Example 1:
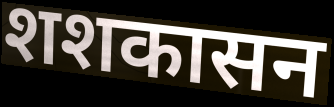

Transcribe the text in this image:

शशकासन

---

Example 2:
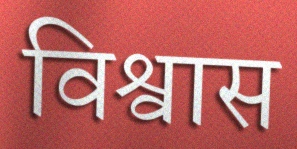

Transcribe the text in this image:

विश्वास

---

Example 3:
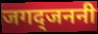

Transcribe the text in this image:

जगद्जननी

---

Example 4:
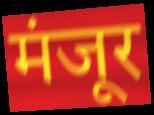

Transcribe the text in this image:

मंजूर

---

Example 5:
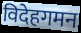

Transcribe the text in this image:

विदेहगमन